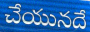
చేయునదే